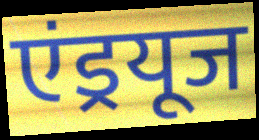
एंड्रयूज